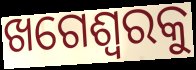
ଖଗେଶ୍ୱରକୁ